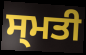
ਸ੍ਮਤੀ